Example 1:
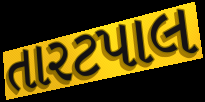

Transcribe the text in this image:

તારટપાલ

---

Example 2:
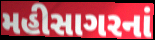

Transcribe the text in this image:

મહીસાગરનાં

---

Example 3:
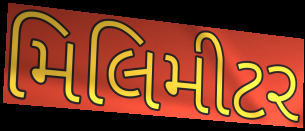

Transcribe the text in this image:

મિલિમીટર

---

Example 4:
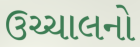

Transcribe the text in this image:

ઉચ્ચાલનો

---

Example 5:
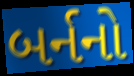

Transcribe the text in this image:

બર્નનો